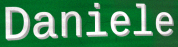
Daniele